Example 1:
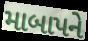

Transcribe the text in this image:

માબાપને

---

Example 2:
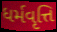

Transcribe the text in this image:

ધર્મવૃત્તિ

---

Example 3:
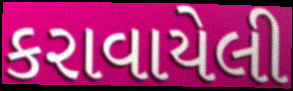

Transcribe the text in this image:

કરાવાયેલી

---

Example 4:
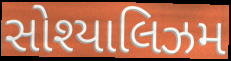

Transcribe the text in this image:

સોશ્યાલિઝમ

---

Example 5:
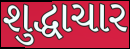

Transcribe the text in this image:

શુદ્ધાચાર